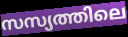
സസ്യത്തിലെ